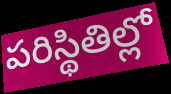
పరిస్థితిల్లో